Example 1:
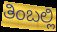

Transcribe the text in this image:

ತಿಂಬಲ್ಲಿ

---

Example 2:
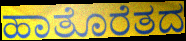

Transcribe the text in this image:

ಹಾತೊರೆತದ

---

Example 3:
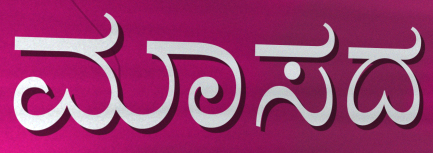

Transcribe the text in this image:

ಮಾಸದ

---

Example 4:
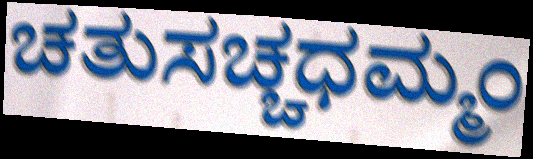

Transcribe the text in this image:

ಚತುಸಚ್ಚಧಮ್ಮಂ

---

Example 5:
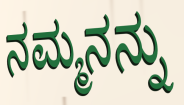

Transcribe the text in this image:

ನಮ್ಮನನ್ನು